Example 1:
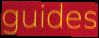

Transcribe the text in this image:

guides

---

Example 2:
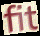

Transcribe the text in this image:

fit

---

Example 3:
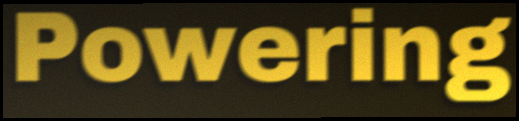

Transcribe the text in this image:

Powering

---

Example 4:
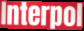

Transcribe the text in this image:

Interpol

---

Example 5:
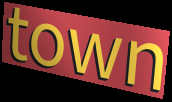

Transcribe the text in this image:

town